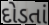
દોડતાં